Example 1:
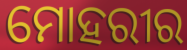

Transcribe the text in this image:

ମୋହରୀର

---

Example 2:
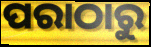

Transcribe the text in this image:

ପରାଠାରୁ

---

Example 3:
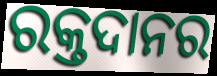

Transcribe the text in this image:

ରକ୍ତଦାନର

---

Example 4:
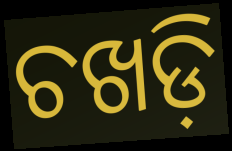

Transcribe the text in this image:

ଚଖଡ଼ି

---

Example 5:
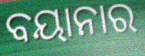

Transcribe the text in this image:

ବୟାନାର